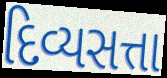
દિવ્યસત્તા